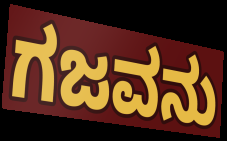
ಗಜವನು